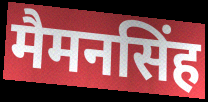
मैमनसिंह